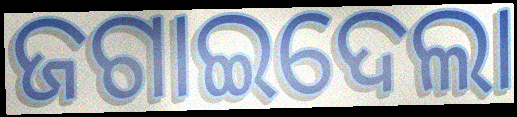
ଜଗାଇଦେଲା